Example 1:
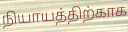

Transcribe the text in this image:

நியாயத்திற்காக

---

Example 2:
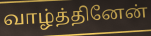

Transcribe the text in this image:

வாழ்த்தினேன்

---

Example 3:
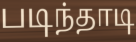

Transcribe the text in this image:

படிந்தாடி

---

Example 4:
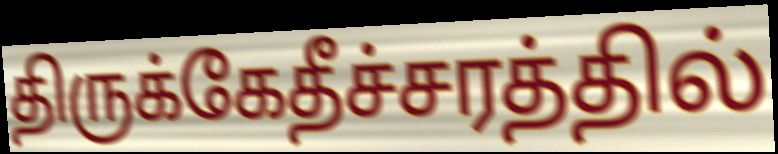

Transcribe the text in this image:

திருக்கேதீச்சரத்தில்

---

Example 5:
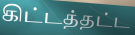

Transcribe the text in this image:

கிட்டத்தட்ட